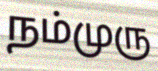
நம்முரு